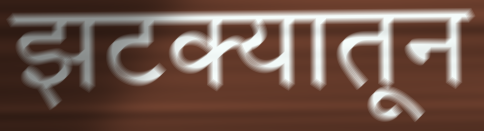
झटक्यातून